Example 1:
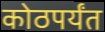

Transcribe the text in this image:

कोठपर्यंत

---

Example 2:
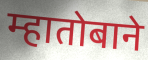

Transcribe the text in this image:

म्हातोबाने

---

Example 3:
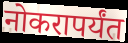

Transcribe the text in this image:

नोकरापर्यंत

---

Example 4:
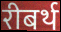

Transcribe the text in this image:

रीबर्थ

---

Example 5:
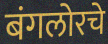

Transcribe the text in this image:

बंगलोरचे